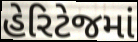
હેરિટેજમાં